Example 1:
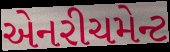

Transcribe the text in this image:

એનરીચમેન્ટ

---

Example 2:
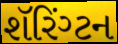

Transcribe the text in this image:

શૅરિંગ્ટન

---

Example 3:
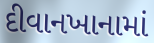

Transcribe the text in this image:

દીવાનખાનામાં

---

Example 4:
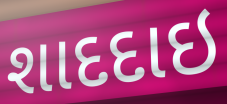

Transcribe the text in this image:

શાદદાઇ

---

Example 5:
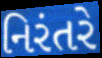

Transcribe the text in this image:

નિરંતરે